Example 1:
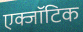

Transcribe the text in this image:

एक्जॉटिक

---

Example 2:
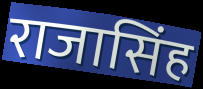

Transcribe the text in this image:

राजासिंह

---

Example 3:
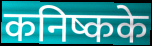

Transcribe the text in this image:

कनिष्कके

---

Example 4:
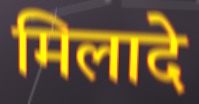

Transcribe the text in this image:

मिलादे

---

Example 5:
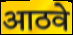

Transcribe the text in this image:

आठवे